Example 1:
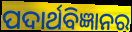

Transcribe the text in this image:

ପଦାର୍ଥବିଜ୍ଞାନର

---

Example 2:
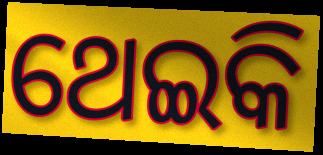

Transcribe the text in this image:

ଥେଇକି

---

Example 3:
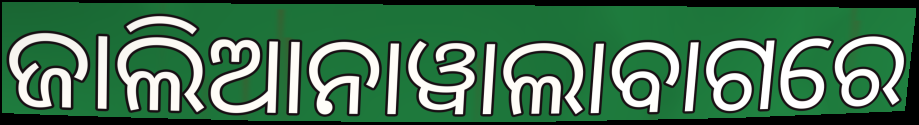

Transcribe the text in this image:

ଜାଲିଆନାୱାଲାବାଗରେ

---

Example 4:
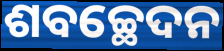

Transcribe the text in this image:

ଶବଚ୍ଛେଦନ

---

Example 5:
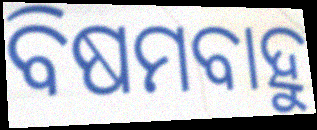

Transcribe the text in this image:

ବିଷମବାହୁ